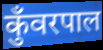
कुँवरपाल